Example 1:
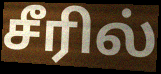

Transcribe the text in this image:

சீரில்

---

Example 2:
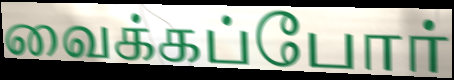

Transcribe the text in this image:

வைக்கப்போர்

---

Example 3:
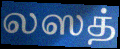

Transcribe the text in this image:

லஸத்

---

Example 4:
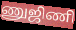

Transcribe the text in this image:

ணுஜிணி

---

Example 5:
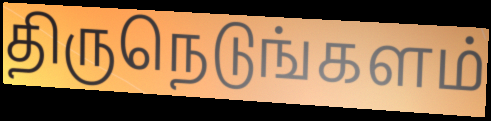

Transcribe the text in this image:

திருநெடுங்களம்